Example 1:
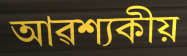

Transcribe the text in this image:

আৱশ্য়কীয়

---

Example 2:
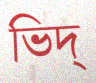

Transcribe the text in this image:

ভিদ্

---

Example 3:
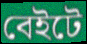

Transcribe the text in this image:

বেইটে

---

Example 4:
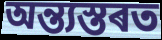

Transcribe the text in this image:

অন্ত্যস্তৰত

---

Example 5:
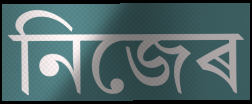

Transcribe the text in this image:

নিজেৰ